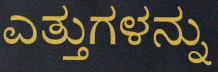
ಎತ್ತುಗಳನ್ನು